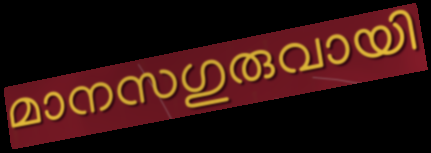
മാനസഗുരുവായി